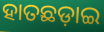
ହାତଛଡ଼ାଇ